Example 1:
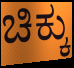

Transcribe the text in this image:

ಚಿಕ್ಕು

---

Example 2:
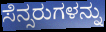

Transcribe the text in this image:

ಸೆನ್ಸರುಗಳನ್ನು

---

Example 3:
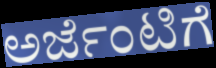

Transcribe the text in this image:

ಅರ್ಜೆಂಟಿಗೆ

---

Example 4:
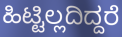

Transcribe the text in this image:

ಹಿಟ್ಟಿಲ್ಲದಿದ್ದರೆ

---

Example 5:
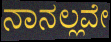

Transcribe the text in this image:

ನಾನಲ್ಲವೇ